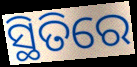
ସ୍ଥିତିରେ